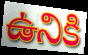
ఉనికి